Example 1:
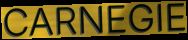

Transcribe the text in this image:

CARNEGIE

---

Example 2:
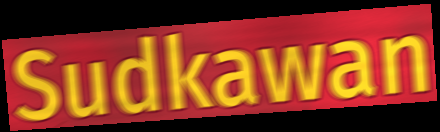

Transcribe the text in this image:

Sudkawan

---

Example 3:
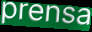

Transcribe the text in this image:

prensa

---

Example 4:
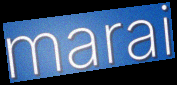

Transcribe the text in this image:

marai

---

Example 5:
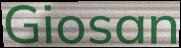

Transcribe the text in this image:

Giosan